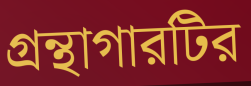
গ্রন্থাগারটির